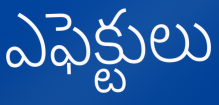
ఎఫెక్టులు